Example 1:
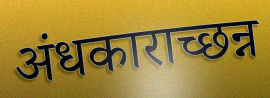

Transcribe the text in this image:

अंधकाराच्छन्न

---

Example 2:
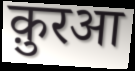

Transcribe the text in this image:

क़ुरआ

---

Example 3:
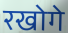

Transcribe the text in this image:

रखोगे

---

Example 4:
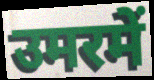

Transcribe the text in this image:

उमरमें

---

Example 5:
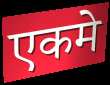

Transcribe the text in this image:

एकमे